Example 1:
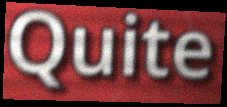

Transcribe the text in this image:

Quite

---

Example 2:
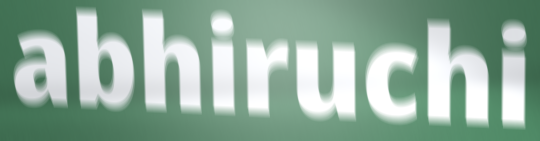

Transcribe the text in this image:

abhiruchi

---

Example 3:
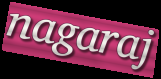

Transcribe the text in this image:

nagaraj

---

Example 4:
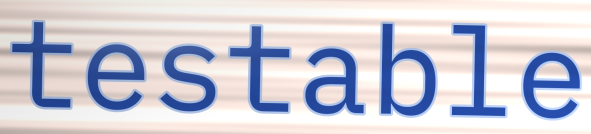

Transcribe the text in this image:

testable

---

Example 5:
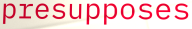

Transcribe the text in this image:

presupposes